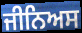
ਜੀਨਿਅਸ